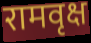
रामवृक्ष